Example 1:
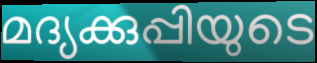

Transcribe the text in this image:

മദ്യക്കുപ്പിയുടെ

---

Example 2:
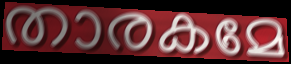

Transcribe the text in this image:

താരകമേ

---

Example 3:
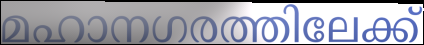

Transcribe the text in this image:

മഹാനഗരത്തിലേക്ക്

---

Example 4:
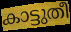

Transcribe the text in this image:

കാട്ടുതീ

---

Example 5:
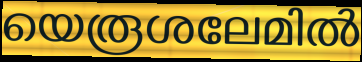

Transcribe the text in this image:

യെരൂശലേമിൽ